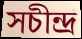
সচীন্দ্র